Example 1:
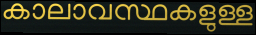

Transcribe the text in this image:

കാലാവസ്ഥകളുള്ള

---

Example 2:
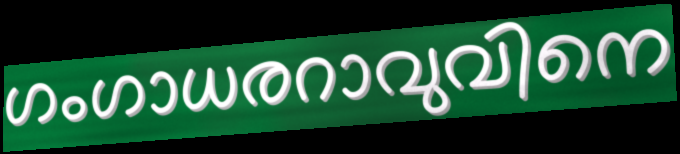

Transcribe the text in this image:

ഗംഗാധരറാവുവിനെ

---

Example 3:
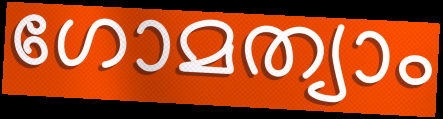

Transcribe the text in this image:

ഗോമത്യാം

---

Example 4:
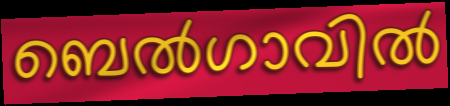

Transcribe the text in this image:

ബെൽഗാവിൽ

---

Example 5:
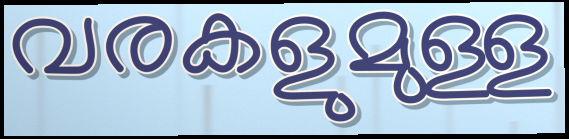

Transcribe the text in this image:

വരകളുമുള്ള